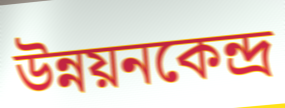
উন্নয়নকেন্দ্র